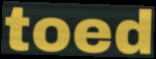
toed